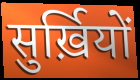
सुर्ख़ियों